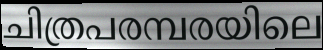
ചിത്രപരമ്പരയിലെ